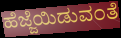
ಹೆಜ್ಜೆಯಿಡುವಂತೆ